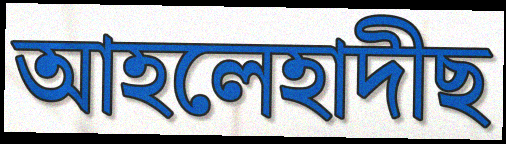
আহলেহাদীছ